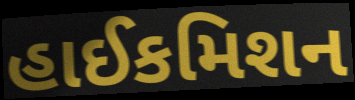
હાઈકમિશન